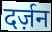
दर्ज़न